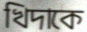
খিদাকে